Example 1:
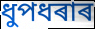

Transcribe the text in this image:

ধুপধৰাৰ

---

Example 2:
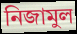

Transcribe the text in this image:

নিজামুল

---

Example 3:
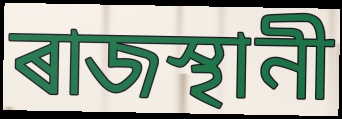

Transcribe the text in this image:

ৰাজস্থানী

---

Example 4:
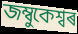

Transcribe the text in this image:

জম্বুকেশ্বৰ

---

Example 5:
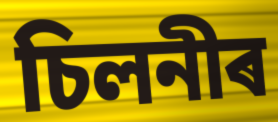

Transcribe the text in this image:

চিলনীৰ